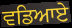
ਵਡਿਆਏ